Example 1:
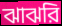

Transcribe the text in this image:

ঝাঝরি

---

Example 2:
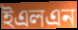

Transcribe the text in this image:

ইএলএন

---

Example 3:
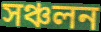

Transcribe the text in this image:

সঞ্চলন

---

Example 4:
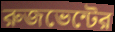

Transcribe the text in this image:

রুজভেন্টের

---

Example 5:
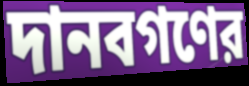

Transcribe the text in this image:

দানবগণের